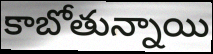
కాబోతున్నాయి